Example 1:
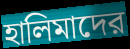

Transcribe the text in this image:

হালিমাদের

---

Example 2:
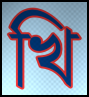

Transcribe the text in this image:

খি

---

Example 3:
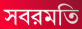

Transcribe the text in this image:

সবরমতি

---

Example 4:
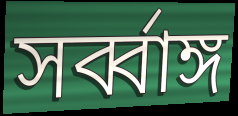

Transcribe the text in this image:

সর্ব্বাঙ্গ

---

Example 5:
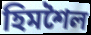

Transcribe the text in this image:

হিমশৈল